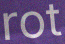
rot